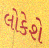
લોકેશે